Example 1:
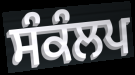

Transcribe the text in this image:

ਸੰਕੰਲਪ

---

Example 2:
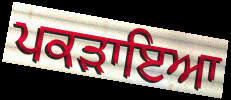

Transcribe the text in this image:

ਪਕੜਾਇਆ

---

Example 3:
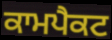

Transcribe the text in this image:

ਕਾਮਪੈਕਟ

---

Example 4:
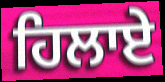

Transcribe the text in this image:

ਹਿਲਾਏ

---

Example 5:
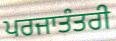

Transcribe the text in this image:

ਪਰਜਾਤੰਤਰੀ